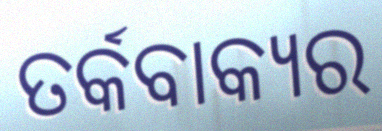
ତର୍କବାକ୍ୟର